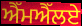
ਐੱਮਐੱਲਏ